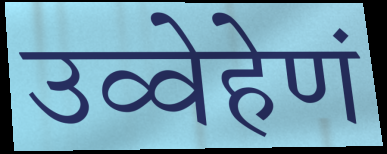
उव्वेहेणं